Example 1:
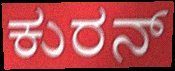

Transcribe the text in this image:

ಕುರನ್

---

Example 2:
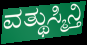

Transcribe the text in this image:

ವತ್ಥುಸ್ಮಿನ್ತಿ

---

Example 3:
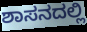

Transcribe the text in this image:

ಶಾಸನದಲ್ಲಿ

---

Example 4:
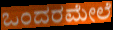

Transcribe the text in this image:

ಒಂದರಮೇಲೆ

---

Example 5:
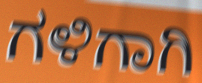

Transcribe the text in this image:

ಗಳಿಗಾಗಿ